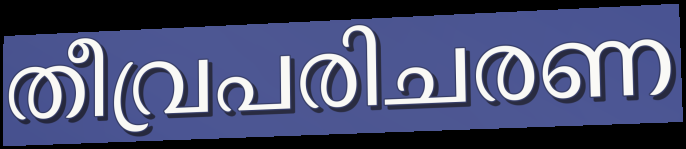
തീവ്രപരിചരണ